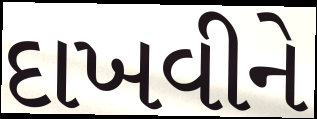
દાખવીને